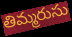
తిమ్మరుసు